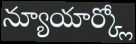
న్యూయార్క్లో